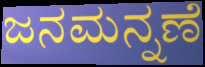
ಜನಮನ್ನಣೆ